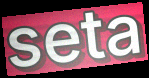
seta